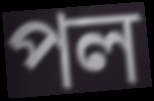
পল